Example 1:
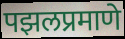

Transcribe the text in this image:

पझलप्रमाणे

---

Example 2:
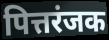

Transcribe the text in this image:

पित्तरंजक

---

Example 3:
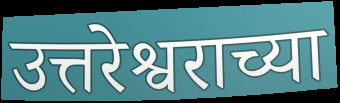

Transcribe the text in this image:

उत्तरेश्वराच्या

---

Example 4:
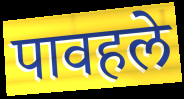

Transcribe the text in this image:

पावहले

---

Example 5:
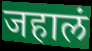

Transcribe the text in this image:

जहालं